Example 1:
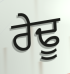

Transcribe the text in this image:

ਰੇਢੂ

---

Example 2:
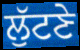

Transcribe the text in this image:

ਲੁੱਟਣੇ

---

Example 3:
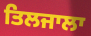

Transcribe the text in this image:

ਤਿਲਜਾਲਾ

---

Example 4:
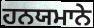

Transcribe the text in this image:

ਹਨਯਮਾਨੇ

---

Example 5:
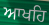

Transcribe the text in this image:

ਆਖਹਿ